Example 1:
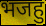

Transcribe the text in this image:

भजहु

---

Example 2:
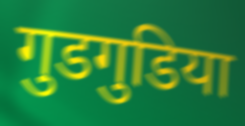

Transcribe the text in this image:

गुडगुडिया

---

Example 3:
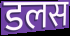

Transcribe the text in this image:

डलस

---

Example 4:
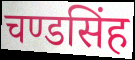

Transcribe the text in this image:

चण्डसिंह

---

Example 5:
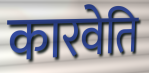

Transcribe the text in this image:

कारवेति